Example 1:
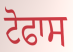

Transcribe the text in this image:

ਟੋਫਾਸ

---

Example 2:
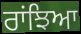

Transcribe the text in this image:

ਰਾਂਝਿਆ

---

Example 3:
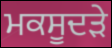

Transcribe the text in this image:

ਮਕਸੂਦੜੇ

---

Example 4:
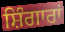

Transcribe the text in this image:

ਸ਼ਿੰਗਾਰਾਂ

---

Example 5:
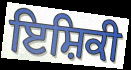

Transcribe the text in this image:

ਇਸ਼ਿਕੀ